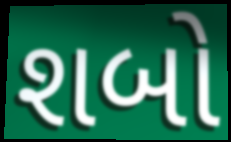
શબો